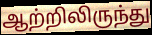
ஆற்றிலிருந்து